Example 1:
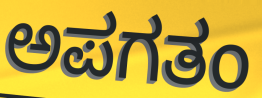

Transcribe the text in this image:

ಅಪಗತಂ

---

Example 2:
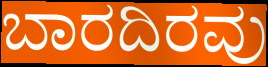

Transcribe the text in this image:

ಬಾರದಿರವು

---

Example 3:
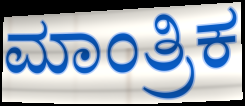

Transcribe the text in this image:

ಮಾಂತ್ರಿಕ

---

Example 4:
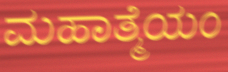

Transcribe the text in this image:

ಮಹಾತ್ಮೆಯಂ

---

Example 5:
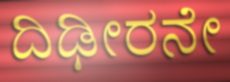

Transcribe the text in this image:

ದಿಢೀರನೇ